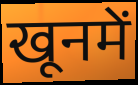
खूनमें